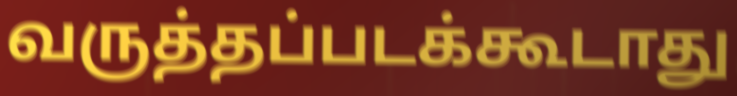
வருத்தப்படக்கூடாது